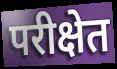
परीक्षेत